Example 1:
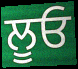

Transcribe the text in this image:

ਲੂਓ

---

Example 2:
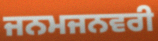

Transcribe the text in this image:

ਜਨਮਜਨਵਰੀ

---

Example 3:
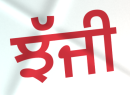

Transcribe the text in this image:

ਝੱਜੀ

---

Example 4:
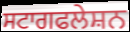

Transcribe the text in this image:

ਸਟਾਗਫਲੇਸ਼ਨ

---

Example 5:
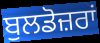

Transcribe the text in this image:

ਬੁਲਡੋਜ਼ਰਾਂ